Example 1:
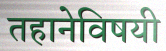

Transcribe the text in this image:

तहानेविषयी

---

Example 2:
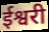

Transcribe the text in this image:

ईश्वरी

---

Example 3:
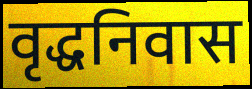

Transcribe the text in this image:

वृद्धनिवास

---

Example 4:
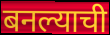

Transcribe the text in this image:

बनल्याची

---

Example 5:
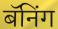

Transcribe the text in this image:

बॅनिंग